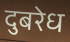
दुबरेध